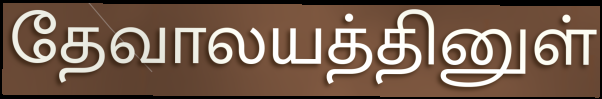
தேவாலயத்தினுள்